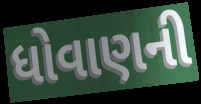
ધોવાણની